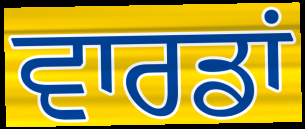
ਵਾਰਡਾਂ